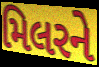
મિલરને